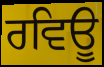
ਰਵਿਊ